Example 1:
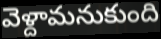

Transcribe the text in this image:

వెళ్దామనుకుంది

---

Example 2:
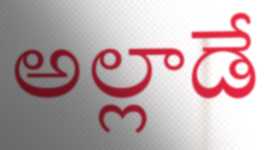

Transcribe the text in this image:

అల్లాడే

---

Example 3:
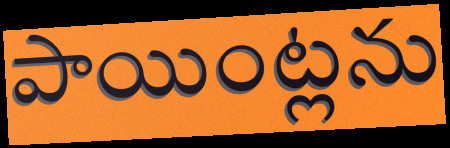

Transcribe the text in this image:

పాయింట్లను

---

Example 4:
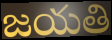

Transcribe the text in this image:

జయతి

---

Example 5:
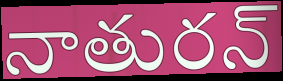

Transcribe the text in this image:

నాతురన్